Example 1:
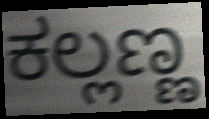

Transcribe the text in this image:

ಕಲ್ಲಣ್ಣ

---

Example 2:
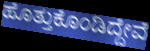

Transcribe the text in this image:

ಹೊತ್ತುಕೊಂಡಿದ್ದೇವೆ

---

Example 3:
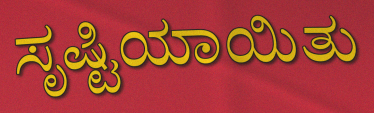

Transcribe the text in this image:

ಸೃಷ್ಟಿಯಾಯಿತು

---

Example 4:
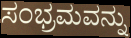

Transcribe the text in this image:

ಸಂಭ್ರಮವನ್ನು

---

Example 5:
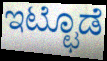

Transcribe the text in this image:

ಇಟ್ಟೊಡೆ